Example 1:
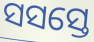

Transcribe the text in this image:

ସସସ୍ତେ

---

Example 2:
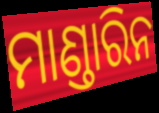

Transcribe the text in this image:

ମାଣ୍ଡାରିନ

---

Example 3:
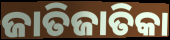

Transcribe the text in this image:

ଜାତିଜାତିକା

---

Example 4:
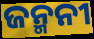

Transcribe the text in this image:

ଜନ୍ମନୀ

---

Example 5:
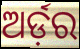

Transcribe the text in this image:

ଅର୍ଡ଼ର